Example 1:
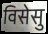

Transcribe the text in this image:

विसेसु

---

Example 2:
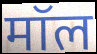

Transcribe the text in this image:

मॉल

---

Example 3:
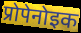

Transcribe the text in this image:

प्रोपेनोइक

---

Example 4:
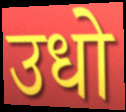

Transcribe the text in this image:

उधो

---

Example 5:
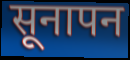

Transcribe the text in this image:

सूनापन